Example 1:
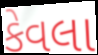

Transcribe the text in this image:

કેવલા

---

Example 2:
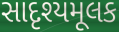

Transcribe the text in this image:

સાદૃશ્યમૂલક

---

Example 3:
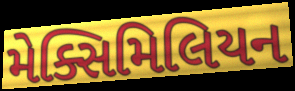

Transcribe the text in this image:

મેક્સિમિલિયન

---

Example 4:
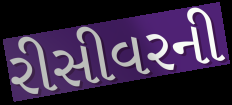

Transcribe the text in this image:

રીસીવરની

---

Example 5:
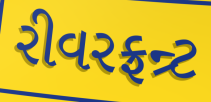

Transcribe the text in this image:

રીવરફ્રન્ર્ટ